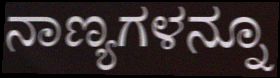
ನಾಣ್ಯಗಳನ್ನೂ